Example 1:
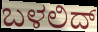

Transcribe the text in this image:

ಬಳಲಿದ್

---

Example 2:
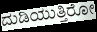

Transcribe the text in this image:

ದುಡಿಯುತ್ತಿರೋ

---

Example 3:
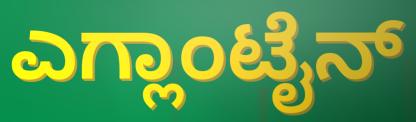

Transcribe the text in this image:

ಎಗ್ಲಾಂಟೈನ್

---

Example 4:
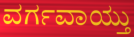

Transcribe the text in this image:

ವರ್ಗವಾಯ್ತು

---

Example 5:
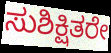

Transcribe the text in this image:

ಸುಶಿಕ್ಷಿತರೇ